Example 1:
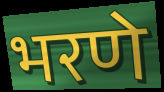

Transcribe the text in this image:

भरणे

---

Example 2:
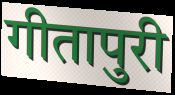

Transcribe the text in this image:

गीतापुरी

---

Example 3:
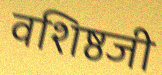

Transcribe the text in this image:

वशिष्ठजी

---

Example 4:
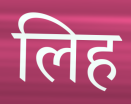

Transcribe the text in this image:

लिह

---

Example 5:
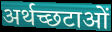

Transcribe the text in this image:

अर्थच्छटाओं